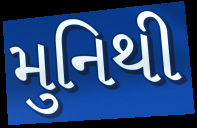
મુનિથી